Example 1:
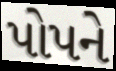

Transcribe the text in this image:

પોપને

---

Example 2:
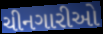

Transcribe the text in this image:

ચીનગારીઓ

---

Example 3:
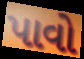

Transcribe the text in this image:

પાવો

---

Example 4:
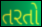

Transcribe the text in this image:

તરતો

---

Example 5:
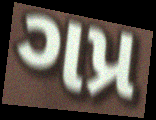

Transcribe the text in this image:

ગપ્ર